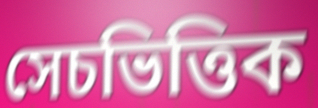
সেচভিত্তিক